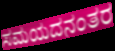
ಸಮಯದನಂತರ